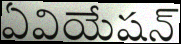
ఏవియేషన్